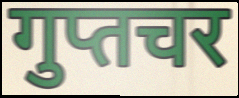
गुप्तचर